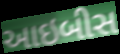
આઇબીસ